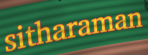
sitharaman